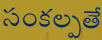
సంకల్పతే